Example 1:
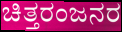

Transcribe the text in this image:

ಚಿತ್ತರಂಜನರ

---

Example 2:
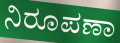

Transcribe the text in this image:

ನಿರೂಪಣಾ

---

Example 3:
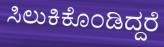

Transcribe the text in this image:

ಸಿಲುಕಿಕೊಂಡಿದ್ದರೆ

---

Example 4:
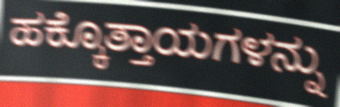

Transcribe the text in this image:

ಹಕ್ಕೊತ್ತಾಯಗಳನ್ನು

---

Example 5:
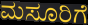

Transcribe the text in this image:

ಮಸೂರಿಗೆ